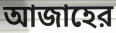
আজাহের